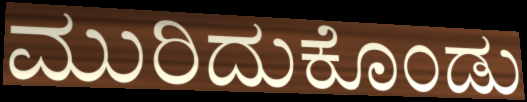
ಮುರಿದುಕೊಂಡು